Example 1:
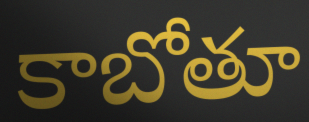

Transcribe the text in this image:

కాబోతూ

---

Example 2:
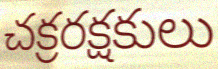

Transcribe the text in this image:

చక్రరక్షకులు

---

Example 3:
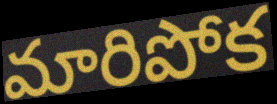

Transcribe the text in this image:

మారిపోక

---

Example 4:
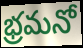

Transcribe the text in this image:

భ్రమనో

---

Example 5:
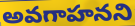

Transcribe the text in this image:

అవగాహనని